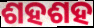
ଶହଶହ